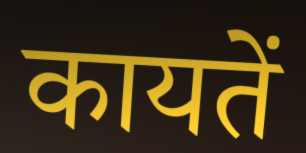
कायतें